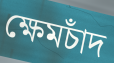
ক্ষেমচাঁদ